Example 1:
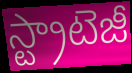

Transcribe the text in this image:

స్ట్రాటెజీ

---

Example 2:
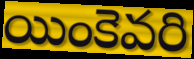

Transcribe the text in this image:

యింకెవరి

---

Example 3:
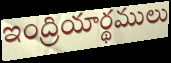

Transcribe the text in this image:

ఇంద్రియార్థములు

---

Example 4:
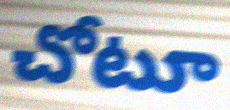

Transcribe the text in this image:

చోటూ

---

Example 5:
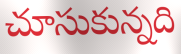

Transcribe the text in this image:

చూసుకున్నది